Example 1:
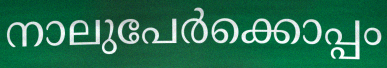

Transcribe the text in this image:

നാലുപേർക്കൊപ്പം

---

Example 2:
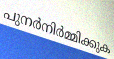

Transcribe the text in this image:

പുനർനിർമ്മിക്കുക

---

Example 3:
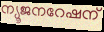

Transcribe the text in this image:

ന്യൂജനറേഷന്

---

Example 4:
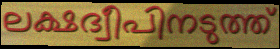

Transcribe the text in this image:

ലക്ഷദ്വീപിനടുത്ത്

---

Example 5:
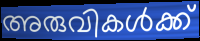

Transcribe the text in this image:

അരുവികൾക്ക്